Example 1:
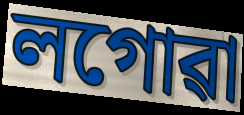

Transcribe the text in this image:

লগোৱা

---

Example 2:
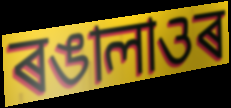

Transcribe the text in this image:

ৰঙালাওৰ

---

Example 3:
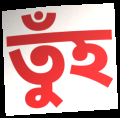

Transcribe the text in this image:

তুঁহ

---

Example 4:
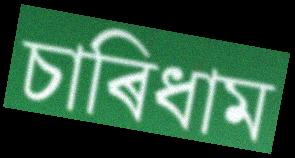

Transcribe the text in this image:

চাৰিধাম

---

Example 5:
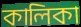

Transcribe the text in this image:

কালিকা